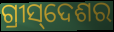
ଗ୍ରୀସ୍‌ଦେଶର